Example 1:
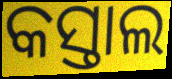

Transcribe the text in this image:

କସ୍ତାଲ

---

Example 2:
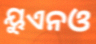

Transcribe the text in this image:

ୟୁଏନଓ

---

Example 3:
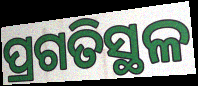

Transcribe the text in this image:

ପ୍ରଗତିସ୍ଥଳ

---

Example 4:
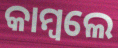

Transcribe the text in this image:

କାମ୍ବଲେ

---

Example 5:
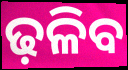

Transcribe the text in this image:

ଢ଼ଳିବ